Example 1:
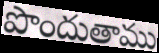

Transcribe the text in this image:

పొందుతాము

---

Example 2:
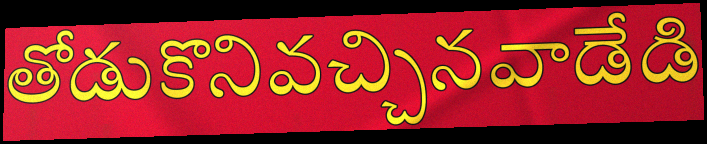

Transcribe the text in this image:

తోడుకొనివచ్చినవాడేడి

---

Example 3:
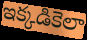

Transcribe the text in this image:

ఇక్కడికెలా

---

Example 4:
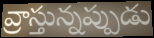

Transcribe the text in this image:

వ్రాస్తున్నప్పుడు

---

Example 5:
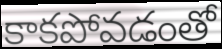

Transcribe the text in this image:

కాకపోవడంతో